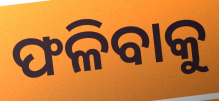
ଫଳିବାକୁ